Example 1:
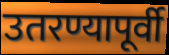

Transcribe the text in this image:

उतरण्यापूर्वी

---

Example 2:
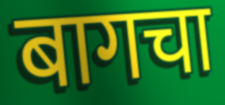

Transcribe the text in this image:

बागचा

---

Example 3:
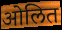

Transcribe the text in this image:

ओलित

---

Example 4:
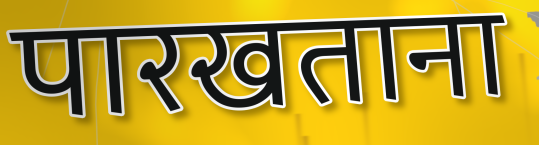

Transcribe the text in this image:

पारखताना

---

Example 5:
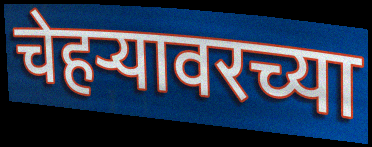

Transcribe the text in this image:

चेहर्‍यावरच्या